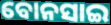
ବୋନସାଇ